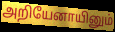
அறியேனாயினும்